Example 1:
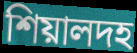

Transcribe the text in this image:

শিয়ালদহ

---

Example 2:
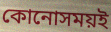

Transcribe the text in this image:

কোনোসময়ই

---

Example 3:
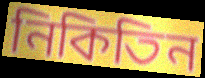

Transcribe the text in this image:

নিকিতিন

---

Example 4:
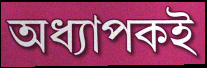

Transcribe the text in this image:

অধ্যাপকই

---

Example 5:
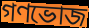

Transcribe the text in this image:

গণভোজ